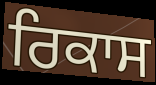
ਰਿਕਾਸ